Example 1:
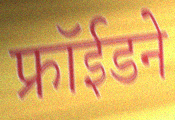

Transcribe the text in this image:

फ्रॉईडने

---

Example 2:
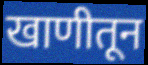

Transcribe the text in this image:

खाणीतून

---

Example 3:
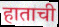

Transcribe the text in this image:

हाताची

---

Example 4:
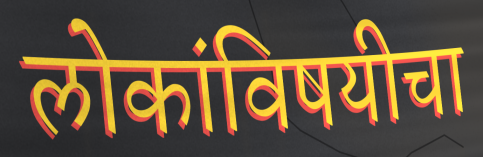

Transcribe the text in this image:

लोकांविषयीचा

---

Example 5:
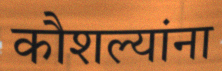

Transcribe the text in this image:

कौशल्यांना